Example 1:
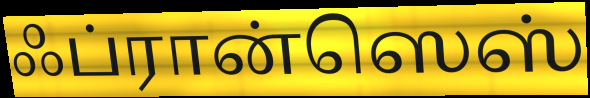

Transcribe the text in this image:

ஃப்ரான்ஸெஸ்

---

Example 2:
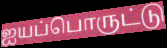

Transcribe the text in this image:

ஐயப்பொருட்டு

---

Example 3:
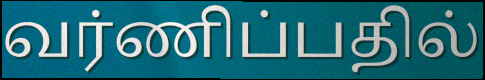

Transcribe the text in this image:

வர்ணிப்பதில்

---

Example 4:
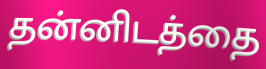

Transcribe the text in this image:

தன்னிடத்தை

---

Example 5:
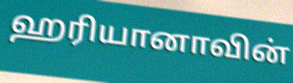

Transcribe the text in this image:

ஹரியானாவின்